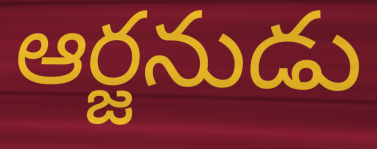
ఆర్జనుడు